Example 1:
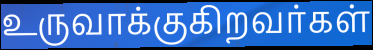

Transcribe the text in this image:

உருவாக்குகிறவர்கள்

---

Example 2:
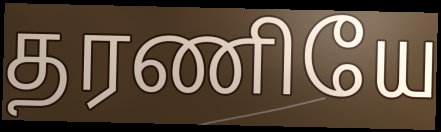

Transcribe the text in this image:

தரணியே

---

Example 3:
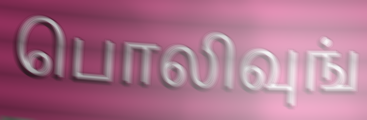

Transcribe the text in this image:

பொலிவுங்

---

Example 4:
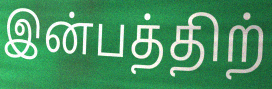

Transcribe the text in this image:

இன்பத்திற்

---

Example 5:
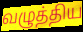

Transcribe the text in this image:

வழுத்திய